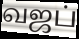
வஜப்